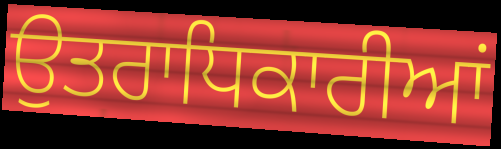
ਉਤਰਾਧਿਕਾਰੀਆਂ